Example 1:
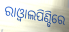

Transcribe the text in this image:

ରାଓ୍ଵାଲପିଣ୍ଡିରେ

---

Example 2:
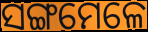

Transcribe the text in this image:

ସଙ୍ଗମେଳେ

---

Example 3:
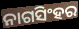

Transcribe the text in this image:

ନାଗସିଂହର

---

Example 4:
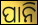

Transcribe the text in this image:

ପାନି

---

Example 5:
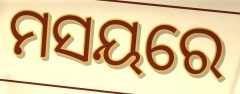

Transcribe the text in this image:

ମସୟରେ